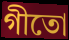
গীতো